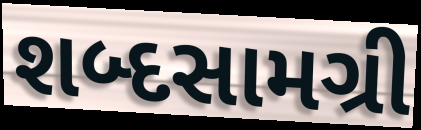
શબ્દસામગ્રી